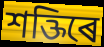
শক্তিৰে